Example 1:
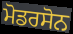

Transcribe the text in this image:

ਮੋਡਰਸੋਨ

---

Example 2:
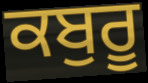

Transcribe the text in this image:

ਕਬੁਰੂ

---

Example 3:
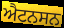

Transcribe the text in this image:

ਐਟਨਸਨ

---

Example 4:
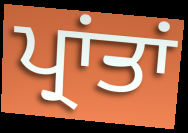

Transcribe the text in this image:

ਪ੍ਰਾਂਤਾਂ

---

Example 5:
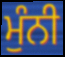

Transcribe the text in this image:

ਮੁੰਨੀ